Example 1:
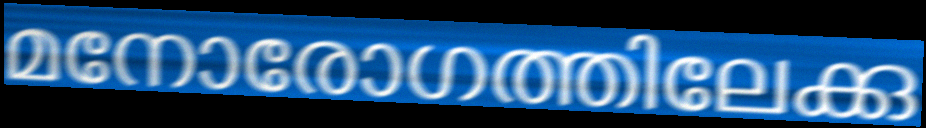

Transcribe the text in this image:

മനോരോഗത്തിലേക്കു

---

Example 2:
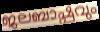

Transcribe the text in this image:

ജലബാഷ്പവും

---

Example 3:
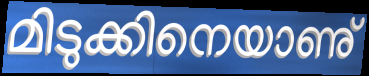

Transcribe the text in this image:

മിടുക്കിനെയാണു്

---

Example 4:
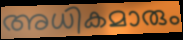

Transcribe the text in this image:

അധികമാരും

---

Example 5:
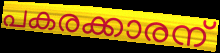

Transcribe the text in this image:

പകരക്കാരന്